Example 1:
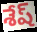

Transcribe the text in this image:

శేష్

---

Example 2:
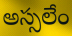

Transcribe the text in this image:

అస్సలేం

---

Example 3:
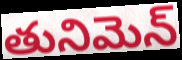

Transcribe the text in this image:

తునిమెన్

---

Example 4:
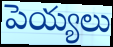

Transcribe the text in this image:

పెయ్యలు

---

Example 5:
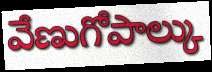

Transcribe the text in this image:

వేణుగోపాల్కు